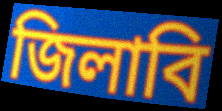
জিলাবি